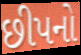
છીપનો